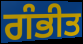
ਗੰਭੀਤ